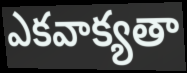
ఎకవాక్యతా